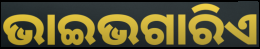
ଭାଇଭଗାରିଏ